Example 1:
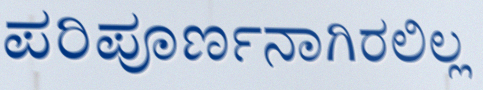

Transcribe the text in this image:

ಪರಿಪೂರ್ಣನಾಗಿರಲಿಲ್ಲ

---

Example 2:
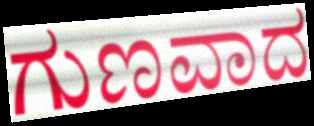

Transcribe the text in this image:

ಗುಣವಾದ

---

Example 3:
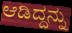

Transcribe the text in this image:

ಆಡಿದ್ದನ್ನು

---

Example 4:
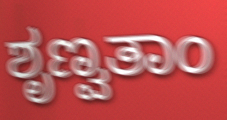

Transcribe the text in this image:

ಶೃಣ್ವತಾಂ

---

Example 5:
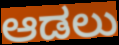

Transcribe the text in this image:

ಆಡಲು